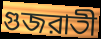
গুজরাতী